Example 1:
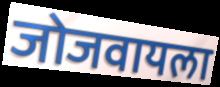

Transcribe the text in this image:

जोजवायला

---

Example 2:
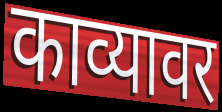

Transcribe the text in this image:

काव्यावर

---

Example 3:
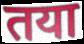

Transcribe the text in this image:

तया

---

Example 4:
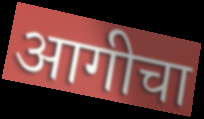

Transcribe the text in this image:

आगीचा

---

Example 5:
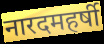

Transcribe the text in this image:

नारदमहर्षी